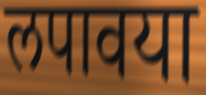
लपावया